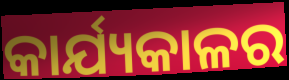
କାର୍ଯ୍ୟକାଳର